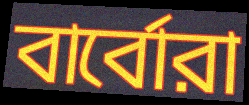
বার্বোরা